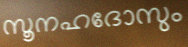
സൂനഹദോസും